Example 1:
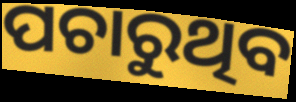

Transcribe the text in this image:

ପଚାରୁଥିବ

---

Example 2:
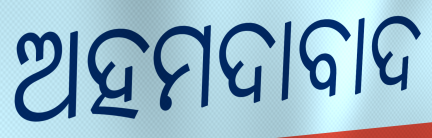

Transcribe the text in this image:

ଅହମଦାବାଦ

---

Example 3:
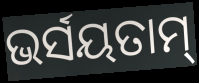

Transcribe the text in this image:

ଭର୍ସୟତାମ୍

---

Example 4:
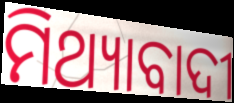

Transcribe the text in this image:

ମିଥ୍ୟାବାଦୀ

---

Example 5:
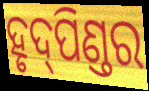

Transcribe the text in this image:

ହୃଦ୍‌ପିଣ୍ଡର